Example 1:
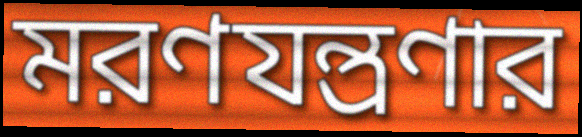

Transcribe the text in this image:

মরণযন্ত্রণার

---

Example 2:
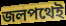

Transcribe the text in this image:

জলপথেই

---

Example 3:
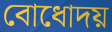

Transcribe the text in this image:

বোধোদয়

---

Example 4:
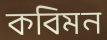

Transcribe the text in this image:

কবিমন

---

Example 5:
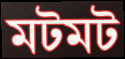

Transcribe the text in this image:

মটমট